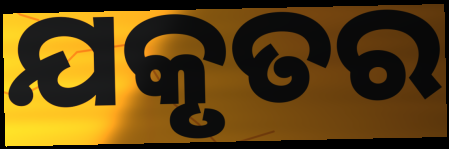
ଯକୃତର